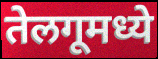
तेलगूमध्ये